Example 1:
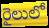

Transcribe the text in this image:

రైలులో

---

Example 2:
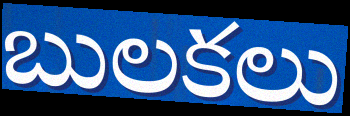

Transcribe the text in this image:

బులకలు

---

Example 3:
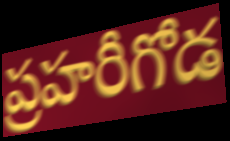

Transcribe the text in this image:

ప్రహరీగోడ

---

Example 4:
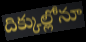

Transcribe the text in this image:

దిక్కుల్లోనూ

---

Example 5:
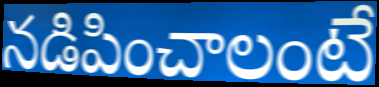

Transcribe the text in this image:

నడిపించాలంటే